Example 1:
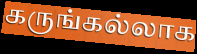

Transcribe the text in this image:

கருங்கல்லாக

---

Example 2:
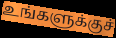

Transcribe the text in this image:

உங்களுக்குச்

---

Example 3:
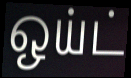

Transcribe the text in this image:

ஒய்ட்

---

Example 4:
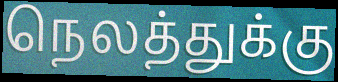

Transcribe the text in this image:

நெலத்துக்கு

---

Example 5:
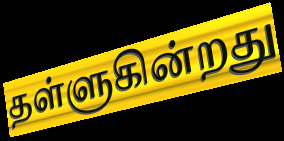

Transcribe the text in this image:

தள்ளுகின்றது